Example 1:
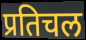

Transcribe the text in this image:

प्रतिचल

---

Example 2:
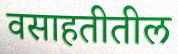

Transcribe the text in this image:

वसाहतीतील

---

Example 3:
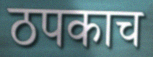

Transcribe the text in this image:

ठपकाच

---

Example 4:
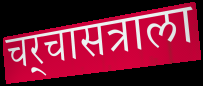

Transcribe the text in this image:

चर्चासत्राला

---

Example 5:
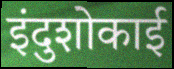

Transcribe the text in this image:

इंदुशोकाई